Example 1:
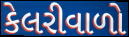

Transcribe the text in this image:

કેલરીવાળો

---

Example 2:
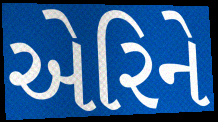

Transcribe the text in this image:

એરિને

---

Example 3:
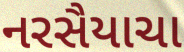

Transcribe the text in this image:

નરસૈયાચા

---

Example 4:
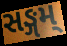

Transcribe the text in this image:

સઙ્ગમ્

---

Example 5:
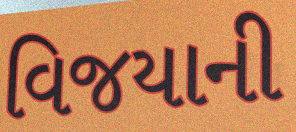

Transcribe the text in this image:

વિજયાની